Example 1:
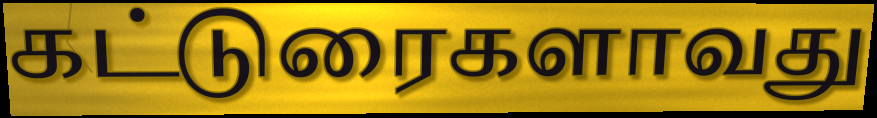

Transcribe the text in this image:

கட்டுரைகளாவது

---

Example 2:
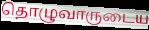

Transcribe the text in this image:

தொழுவாருடைய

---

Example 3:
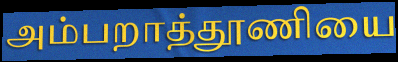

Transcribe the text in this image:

அம்பறாத்தூணியை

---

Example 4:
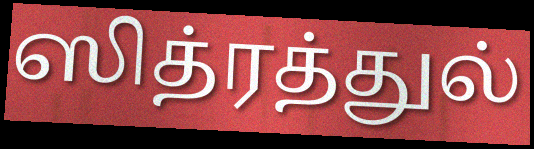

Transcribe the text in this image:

ஸித்ரத்துல்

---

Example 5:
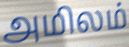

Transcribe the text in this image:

அமிலம்